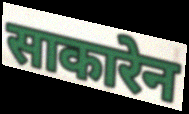
साकारेन